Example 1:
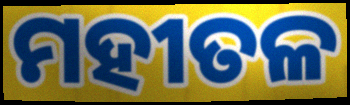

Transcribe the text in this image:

ମହୀତଳ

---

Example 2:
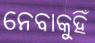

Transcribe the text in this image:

ନେବାକୁହିଁ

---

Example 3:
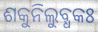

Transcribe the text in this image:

ଶକୁନିଲୁବ୍ଧକଃ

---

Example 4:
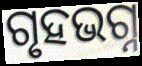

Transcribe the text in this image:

ଗୃହଭଗ୍ନ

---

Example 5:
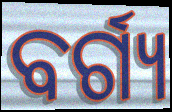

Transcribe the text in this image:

ବର୍ଗ୍ୟ